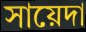
সায়েদা